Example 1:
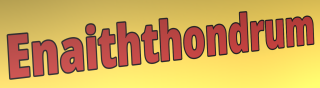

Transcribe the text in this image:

Enaiththondrum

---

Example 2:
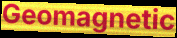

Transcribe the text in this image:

Geomagnetic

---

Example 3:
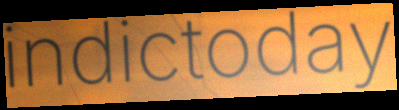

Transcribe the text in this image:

indictoday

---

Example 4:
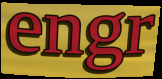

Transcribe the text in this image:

engr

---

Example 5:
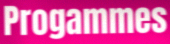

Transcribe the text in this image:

Progammes